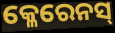
କ୍ଳେରେନସ୍